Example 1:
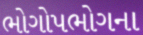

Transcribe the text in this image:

ભોગોપભોગના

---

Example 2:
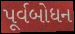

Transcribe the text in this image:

પૂર્વબોધન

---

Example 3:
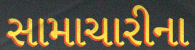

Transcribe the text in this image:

સામાચારીના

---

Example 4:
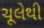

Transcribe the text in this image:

ચૂલેથી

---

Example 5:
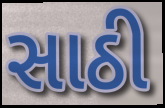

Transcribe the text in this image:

સાઠી